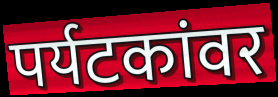
पर्यटकांवर